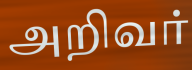
அறிவர்